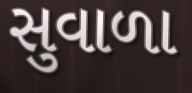
સુવાળા